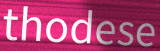
thodese